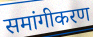
समांगीकरण